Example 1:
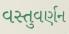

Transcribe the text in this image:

વસ્તુવર્ણન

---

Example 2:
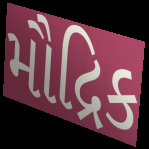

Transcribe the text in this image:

મૌદ્રિક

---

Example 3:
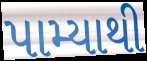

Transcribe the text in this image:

પામ્યાથી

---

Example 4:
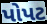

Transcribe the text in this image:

પોપટ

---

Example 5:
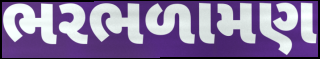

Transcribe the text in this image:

ભરભળામણ